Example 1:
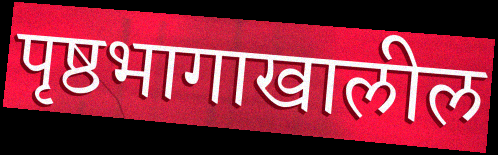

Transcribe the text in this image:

पृष्ठभागाखालील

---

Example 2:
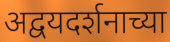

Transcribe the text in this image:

अद्वयदर्शनाच्या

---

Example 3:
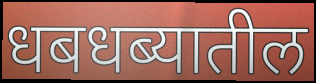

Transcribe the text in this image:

धबधब्यातील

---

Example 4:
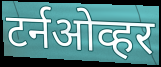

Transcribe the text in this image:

टर्नओव्हर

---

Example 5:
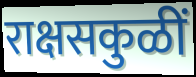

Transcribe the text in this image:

राक्षसकुळीं